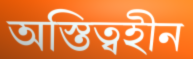
অস্তিত্বহীন